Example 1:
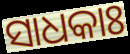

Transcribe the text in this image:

ସାଧକାଃ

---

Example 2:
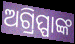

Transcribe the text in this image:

ଅଗ୍ରିପ୍ପାଙ୍କ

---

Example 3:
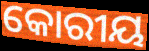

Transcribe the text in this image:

କୋରୀୟ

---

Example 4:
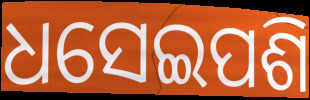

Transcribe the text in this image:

ଧସେଇପଶି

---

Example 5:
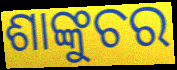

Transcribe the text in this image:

ଶାଙ୍କୁଚର